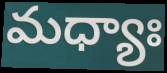
మధ్యాః